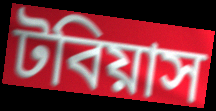
টবিয়াস